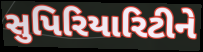
સુપિરિયારિટીને